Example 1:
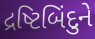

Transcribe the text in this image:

દ્રષ્ટિબિંદુને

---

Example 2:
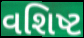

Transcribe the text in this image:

વશિષ્ટ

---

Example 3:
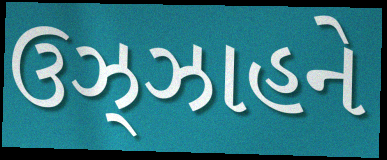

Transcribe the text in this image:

ઉઝ્ઝાહને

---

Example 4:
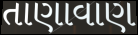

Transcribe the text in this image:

તાણાવાણ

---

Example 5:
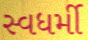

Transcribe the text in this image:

સ્વધર્મી